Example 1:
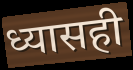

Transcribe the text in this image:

ध्यासही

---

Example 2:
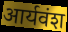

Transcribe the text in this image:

आर्यवंश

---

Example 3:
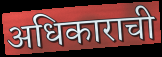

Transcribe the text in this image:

अधिकाराची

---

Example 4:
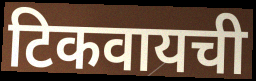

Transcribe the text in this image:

टिकवायची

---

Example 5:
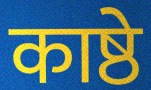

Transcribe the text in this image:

काष्ठे